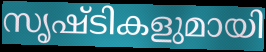
സൃഷ്ടികളുമായി